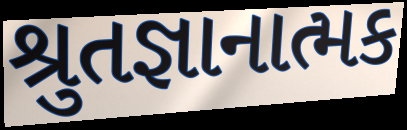
શ્રુતજ્ઞાનાત્મક